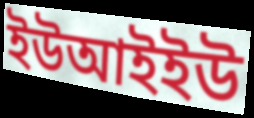
ইউআইইউ